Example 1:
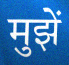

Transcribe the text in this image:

मुझें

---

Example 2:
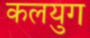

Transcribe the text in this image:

कलयुग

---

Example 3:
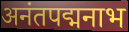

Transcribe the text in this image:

अनंतपद्मनाभ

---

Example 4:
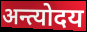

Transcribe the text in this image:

अन्त्योदय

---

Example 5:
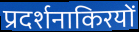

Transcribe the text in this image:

प्रदर्शनाकिरयों